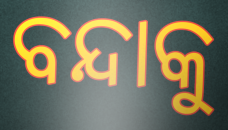
ବନ୍ଦାକୁ